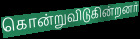
கொன்றுவிடுகின்றனர்